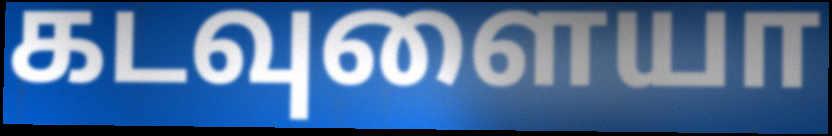
கடவுளையா